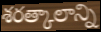
శరత్కాలాన్ని